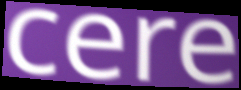
cere